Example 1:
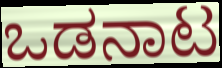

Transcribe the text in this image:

ಒಡನಾಟ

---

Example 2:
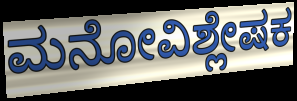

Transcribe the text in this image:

ಮನೋವಿಶ್ಲೇಷಕ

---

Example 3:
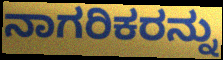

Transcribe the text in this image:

ನಾಗರಿಕರನ್ನು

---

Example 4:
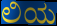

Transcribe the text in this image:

ಲಿಯ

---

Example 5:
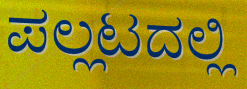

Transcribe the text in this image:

ಪಲ್ಲಟದಲ್ಲಿ